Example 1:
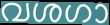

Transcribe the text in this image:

വശഗാ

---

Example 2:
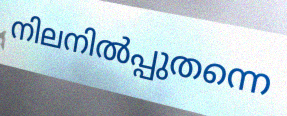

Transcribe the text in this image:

നിലനിൽപ്പുതന്നെ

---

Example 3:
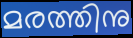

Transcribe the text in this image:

മരത്തിനു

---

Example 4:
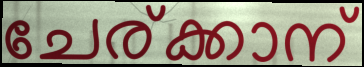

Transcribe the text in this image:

ചേര്ക്കാന്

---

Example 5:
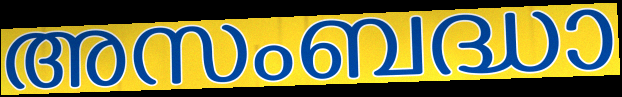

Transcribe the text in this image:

അസംബദ്ധാ